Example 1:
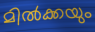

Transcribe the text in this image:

മിൽക്കയും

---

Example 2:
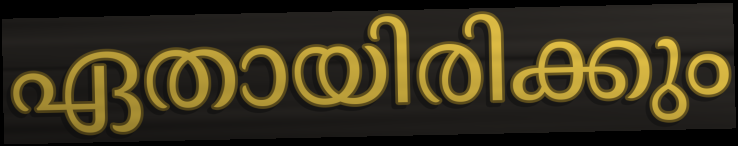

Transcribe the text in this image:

ഏതായിരിക്കും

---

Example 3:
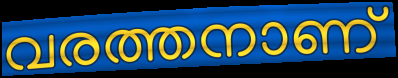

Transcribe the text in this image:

വരത്തനാണ്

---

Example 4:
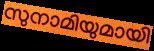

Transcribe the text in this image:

സുനാമിയുമായി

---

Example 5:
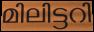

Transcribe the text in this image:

മിലിട്ടറി